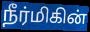
நீர்மிகின்